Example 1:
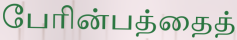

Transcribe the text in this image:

பேரின்பத்தைத்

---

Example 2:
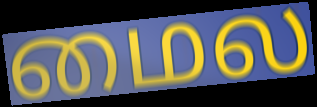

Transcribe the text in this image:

மைல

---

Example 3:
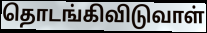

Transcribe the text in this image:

தொடங்கிவிடுவாள்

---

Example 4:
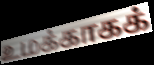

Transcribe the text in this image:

உமக்காகக்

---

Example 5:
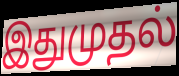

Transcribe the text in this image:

இதுமுதல்